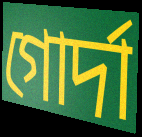
গোর্দা